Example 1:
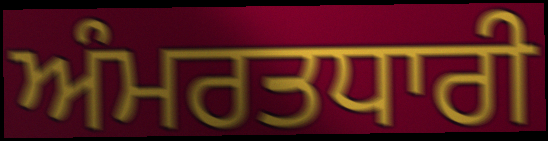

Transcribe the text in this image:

ਅੰਮਰਤਧਾਰੀ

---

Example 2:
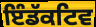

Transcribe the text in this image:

ਇੰਡੱਕਟਿਵ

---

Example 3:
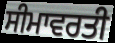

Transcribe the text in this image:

ਸੀਮਾਵਰਤੀ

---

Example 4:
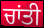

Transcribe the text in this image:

ਚਾਂਤੀ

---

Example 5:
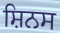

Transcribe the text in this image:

ਸ਼ਿਨਸ